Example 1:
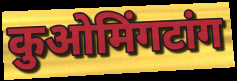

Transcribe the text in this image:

कुओमिंगटांग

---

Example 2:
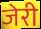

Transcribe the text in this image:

जेरी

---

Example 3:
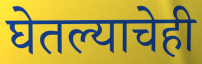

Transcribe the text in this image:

घेतल्याचेही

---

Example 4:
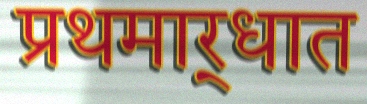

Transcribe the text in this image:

प्रथमार्धात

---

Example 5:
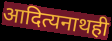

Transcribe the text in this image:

आदित्यनाथही